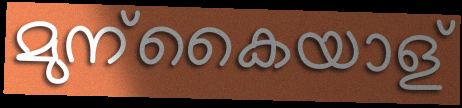
മുന്കൈയാള്